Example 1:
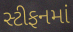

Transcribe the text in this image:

સ્ટીફનમાં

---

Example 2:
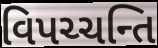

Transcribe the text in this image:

વિપચ્ચન્તિ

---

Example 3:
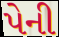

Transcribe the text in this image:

પેની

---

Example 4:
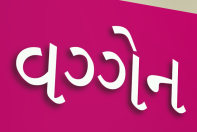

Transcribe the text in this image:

વગ્ગેન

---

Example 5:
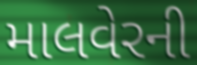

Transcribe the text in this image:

માલવેરની